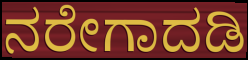
ನರೇಗಾದಡಿ